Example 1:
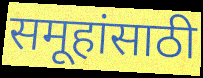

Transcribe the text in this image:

समूहांसाठी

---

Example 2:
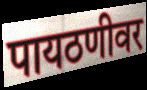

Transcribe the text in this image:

पायठणीवर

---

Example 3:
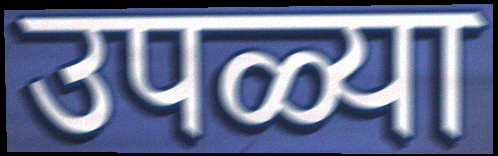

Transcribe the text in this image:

उपळ्या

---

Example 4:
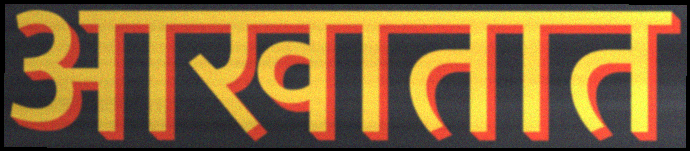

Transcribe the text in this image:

आखातात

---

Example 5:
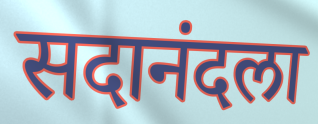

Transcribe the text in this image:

सदानंदला